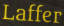
Laffer